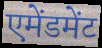
एमेंडमेंट